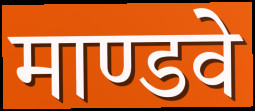
माण्डवे